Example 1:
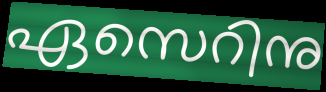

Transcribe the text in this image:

ഏസെറിനു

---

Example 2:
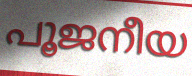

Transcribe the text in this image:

പൂജനീയ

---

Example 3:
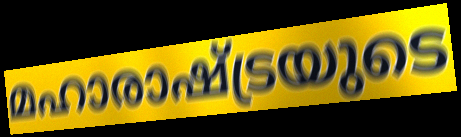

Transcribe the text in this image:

മഹാരാഷ്ട്രയുടെ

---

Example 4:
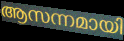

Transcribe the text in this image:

ആസന്നമായി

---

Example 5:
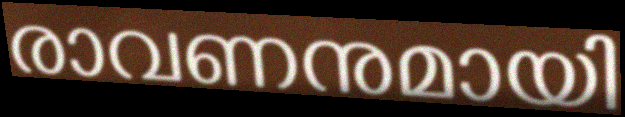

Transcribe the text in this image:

രാവണനുമായി